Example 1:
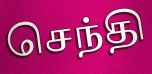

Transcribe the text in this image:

செந்தி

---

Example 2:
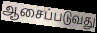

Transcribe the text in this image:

ஆசைப்படுவது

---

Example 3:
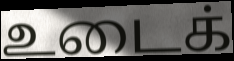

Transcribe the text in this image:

உடைக்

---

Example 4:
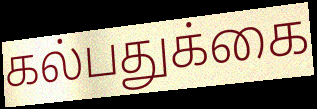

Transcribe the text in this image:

கல்பதுக்கை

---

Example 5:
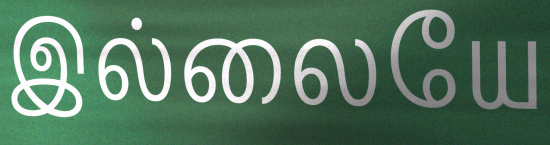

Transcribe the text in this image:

இல்லையே